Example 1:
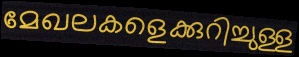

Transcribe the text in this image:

മേഖലകളെക്കുറിച്ചുള്ള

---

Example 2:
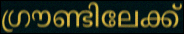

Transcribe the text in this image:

ഗ്രൗണ്ടിലേക്ക്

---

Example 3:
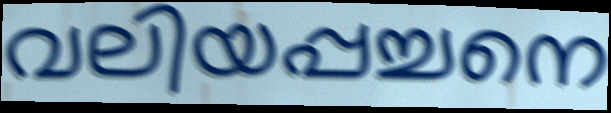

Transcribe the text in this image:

വലിയപ്പച്ചനെ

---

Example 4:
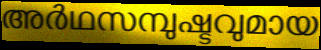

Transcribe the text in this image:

അർഥസമ്പുഷ്ടവുമായ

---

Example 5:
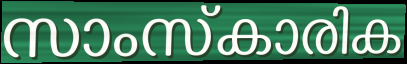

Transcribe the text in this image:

സാംസ്‌കാരിക